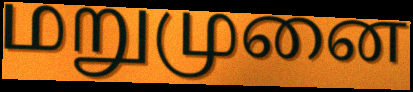
மறுமுனை